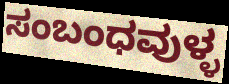
ಸಂಬಂಧವುಳ್ಳ